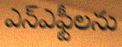
ఎన్ఎఫ్టీలను